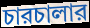
চারচালার